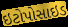
ઇટોપોસાઇડ